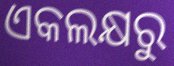
ଏକଲକ୍ଷରୁ